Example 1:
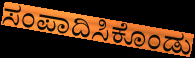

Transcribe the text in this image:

ಸಂಪಾದಿಸಿಕೊಂಡು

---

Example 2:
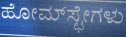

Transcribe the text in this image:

ಹೋಮ್‌ಸ್ಟೇಗಳು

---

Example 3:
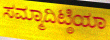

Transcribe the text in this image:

ಸಮ್ಮಾದಿಟ್ಠಿಯಾ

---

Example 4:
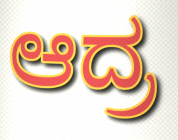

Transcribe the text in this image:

ಆದ್ರ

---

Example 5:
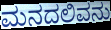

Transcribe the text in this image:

ಮನದಲಿವನು